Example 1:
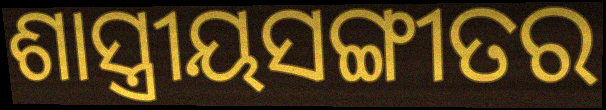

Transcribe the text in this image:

ଶାସ୍ତ୍ରୀୟସଙ୍ଗୀତର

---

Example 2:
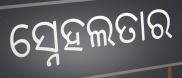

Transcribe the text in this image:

ସ୍ନେହଲତାର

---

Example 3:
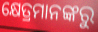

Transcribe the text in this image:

କ୍ଷେତ୍ରମାନଙ୍କରୁ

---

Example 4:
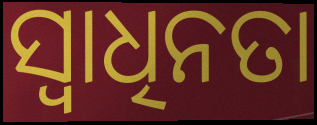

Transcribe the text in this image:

ସ୍ୱାଧିନତା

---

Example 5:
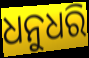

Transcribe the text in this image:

ଧନୁଧରି